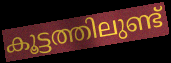
കൂട്ടത്തിലുണ്ട്